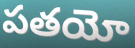
పతయో